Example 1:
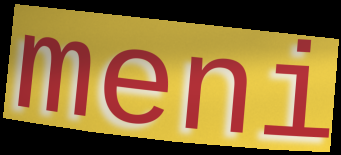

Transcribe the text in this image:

meni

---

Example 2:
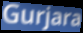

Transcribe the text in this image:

Gurjara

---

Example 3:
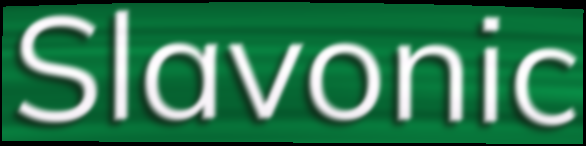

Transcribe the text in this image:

Slavonic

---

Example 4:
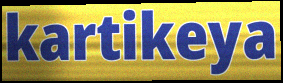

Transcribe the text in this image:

kartikeya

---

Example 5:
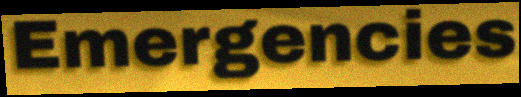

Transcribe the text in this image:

Emergencies